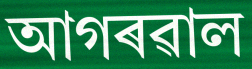
আগৰৱাল